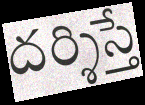
దర్శిస్తే